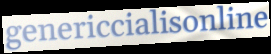
genericcialisonline